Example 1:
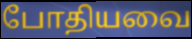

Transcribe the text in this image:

போதியவை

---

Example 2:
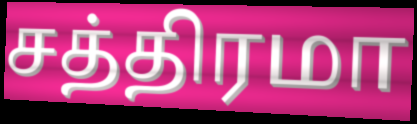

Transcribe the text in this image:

சத்திரமா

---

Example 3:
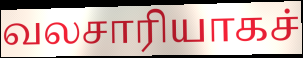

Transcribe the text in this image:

வலசாரியாகச்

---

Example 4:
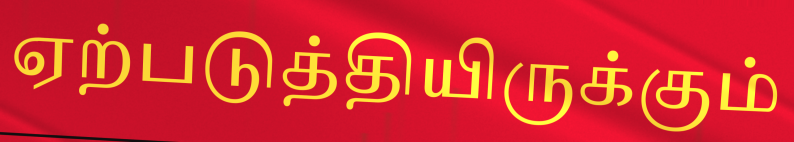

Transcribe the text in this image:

ஏற்படுத்தியிருக்கும்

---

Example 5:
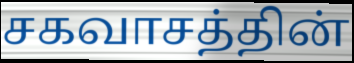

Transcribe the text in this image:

சகவாசத்தின்